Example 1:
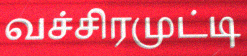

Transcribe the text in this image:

வச்சிரமுட்டி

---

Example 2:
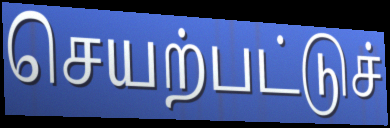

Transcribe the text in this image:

செயற்பட்டுச்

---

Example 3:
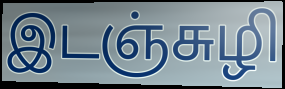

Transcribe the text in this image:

இடஞ்சுழி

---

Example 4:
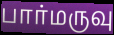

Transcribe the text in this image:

பார்மருவு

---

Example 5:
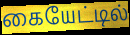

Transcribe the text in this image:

கையேட்டில்